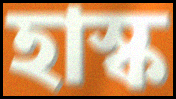
হাস্ক